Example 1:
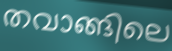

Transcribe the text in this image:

തവാങ്ങിലെ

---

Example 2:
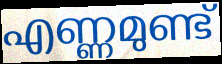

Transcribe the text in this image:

എണ്ണമുണ്ട്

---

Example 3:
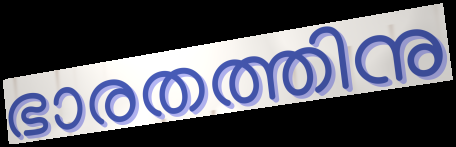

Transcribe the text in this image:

ഭാരതത്തിനു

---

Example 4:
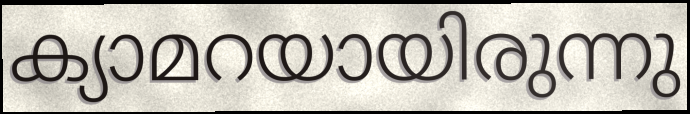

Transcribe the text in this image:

ക്യാമറയായിരുന്നു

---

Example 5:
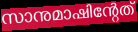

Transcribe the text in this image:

സാനുമാഷിന്റേത്